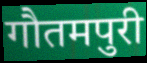
गौतमपुरी